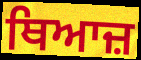
ਥਿਆਜ਼